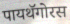
पायथॅगोरस